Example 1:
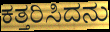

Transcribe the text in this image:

ಕತ್ತರಿಸಿದನು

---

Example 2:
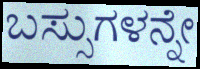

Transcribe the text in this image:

ಬಸ್ಸುಗಳನ್ನೇ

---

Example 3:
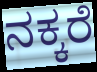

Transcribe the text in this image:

ನಕ್ಕರೆ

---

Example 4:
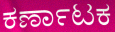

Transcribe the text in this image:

ಕರ್ಣಾಟಕ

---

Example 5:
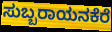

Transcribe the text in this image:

ಸುಬ್ಬರಾಯನಕೆರೆ